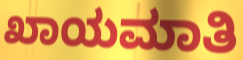
ಖಾಯಮಾತಿ